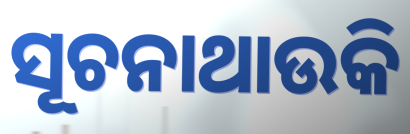
ସୂଚନାଥାଉକି